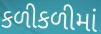
કળીકળીમાં